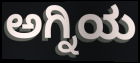
ಅಗ್ನಿಯ